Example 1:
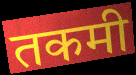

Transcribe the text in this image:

तकमी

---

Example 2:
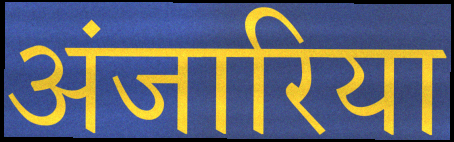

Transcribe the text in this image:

अंजारिया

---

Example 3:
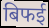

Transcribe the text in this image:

बिफई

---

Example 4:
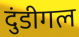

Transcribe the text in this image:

दुंडीगल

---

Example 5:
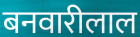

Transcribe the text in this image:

बनवारीलाल